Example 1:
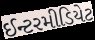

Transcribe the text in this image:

ઈન્ટરમીડિયેટ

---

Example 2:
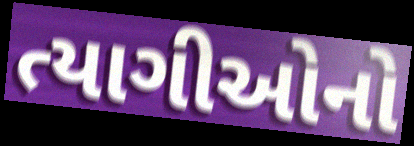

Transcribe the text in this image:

ત્યાગીઓનો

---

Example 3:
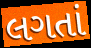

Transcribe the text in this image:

લગતાં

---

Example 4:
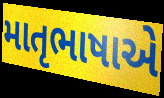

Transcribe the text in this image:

માતૃભાષાએ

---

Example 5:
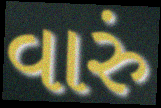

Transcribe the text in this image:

વારું